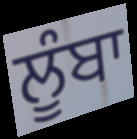
ਲੂੰਬਾ